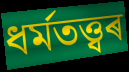
ধৰ্মতত্ত্বৰ